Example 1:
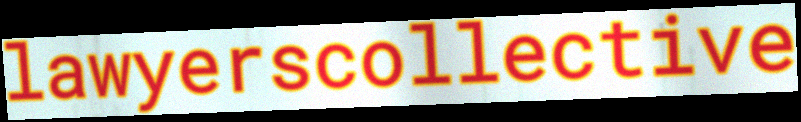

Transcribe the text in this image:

lawyerscollective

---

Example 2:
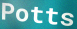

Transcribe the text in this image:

Potts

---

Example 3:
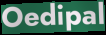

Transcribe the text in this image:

Oedipal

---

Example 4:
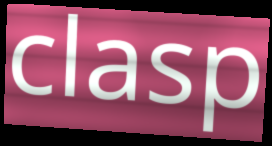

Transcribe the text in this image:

clasp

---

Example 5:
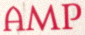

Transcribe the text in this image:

AMP